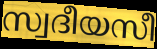
സ്വദീയസീ